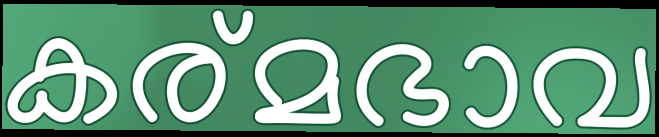
കര്മഭാവ